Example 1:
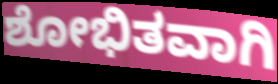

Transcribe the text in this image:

ಶೋಭಿತವಾಗಿ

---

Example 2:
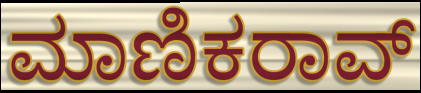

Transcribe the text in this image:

ಮಾಣಿಕರಾವ್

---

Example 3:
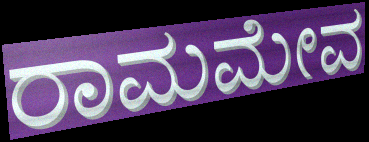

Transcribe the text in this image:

ರಾಮಮೇವ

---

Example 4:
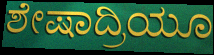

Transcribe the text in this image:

ಶೇಷಾದ್ರಿಯೂ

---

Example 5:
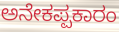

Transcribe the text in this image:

ಅನೇಕಪ್ಪಕಾರಂ